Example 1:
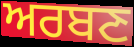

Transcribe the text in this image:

ਅਰਬਣ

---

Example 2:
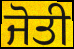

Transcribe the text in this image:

ਜੋਤੀ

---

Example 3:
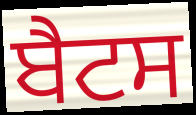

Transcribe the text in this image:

ਬੈਟਸ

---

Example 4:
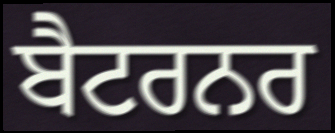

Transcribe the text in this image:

ਬੈਟਰਨਰ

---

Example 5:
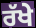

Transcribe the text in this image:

ਰੱਖੇ